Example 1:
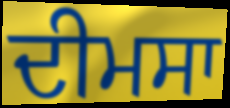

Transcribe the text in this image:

ਦੀਮਸਾ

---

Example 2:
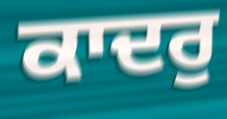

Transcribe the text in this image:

ਕਾਦਰੁ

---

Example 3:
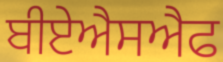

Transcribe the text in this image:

ਬੀਏਐਸਐਫ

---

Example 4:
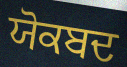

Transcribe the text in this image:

ਯੋਕਬਦ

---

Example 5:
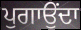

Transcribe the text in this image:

ਪੁਗਾਉਂਦਾ